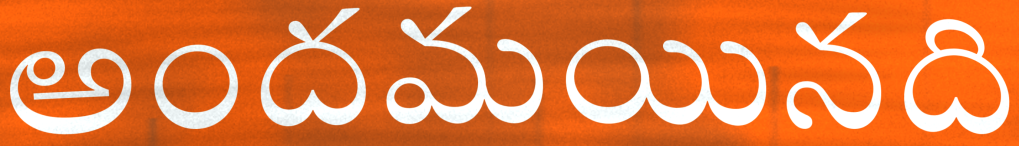
అందమయినది